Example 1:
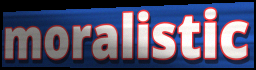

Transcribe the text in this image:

moralistic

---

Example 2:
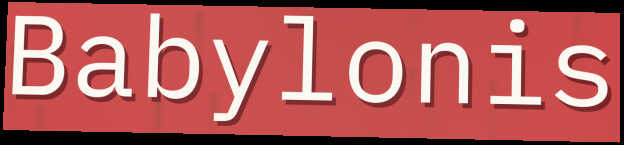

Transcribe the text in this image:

Babylonis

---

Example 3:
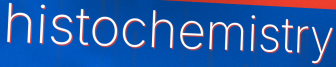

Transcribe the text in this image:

histochemistry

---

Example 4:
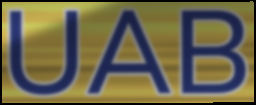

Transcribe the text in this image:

UAB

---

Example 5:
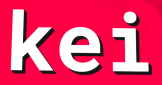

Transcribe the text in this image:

kei